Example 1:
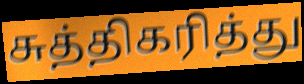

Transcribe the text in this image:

சுத்திகரித்து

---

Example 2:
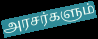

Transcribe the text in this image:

அரசர்களும்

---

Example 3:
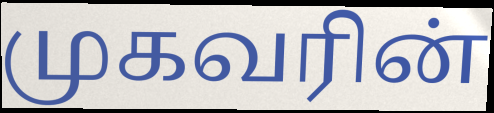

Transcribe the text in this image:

முகவரின்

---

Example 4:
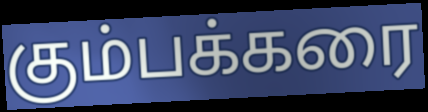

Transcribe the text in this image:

கும்பக்கரை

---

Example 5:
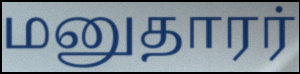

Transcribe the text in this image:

மனுதாரர்